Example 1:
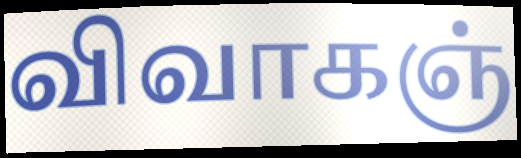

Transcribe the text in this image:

விவாகஞ்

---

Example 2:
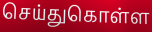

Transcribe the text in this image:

செய்துகொள்ள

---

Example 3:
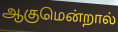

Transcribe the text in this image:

ஆகுமென்றால்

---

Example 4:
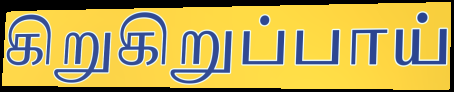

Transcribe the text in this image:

கிறுகிறுப்பாய்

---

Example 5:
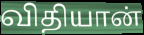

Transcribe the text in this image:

விதியான்